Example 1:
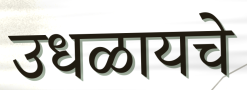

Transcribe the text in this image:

उधळायचे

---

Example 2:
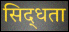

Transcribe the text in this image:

सिद्‌धता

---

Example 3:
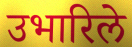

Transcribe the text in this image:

उभारिले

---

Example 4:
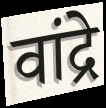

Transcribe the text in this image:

वांद्रे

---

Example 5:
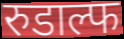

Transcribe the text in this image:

रुडाल्फ